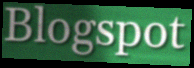
Blogspot